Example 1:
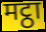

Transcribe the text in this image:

मट्ठा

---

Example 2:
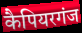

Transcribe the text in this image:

कैपियरगंज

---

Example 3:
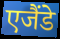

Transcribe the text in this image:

एजैंडे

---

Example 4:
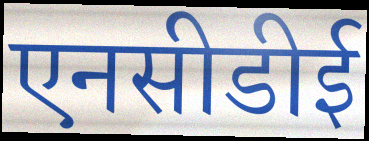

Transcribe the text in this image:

एनसीडीई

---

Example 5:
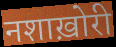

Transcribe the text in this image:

नशाख़ोरी